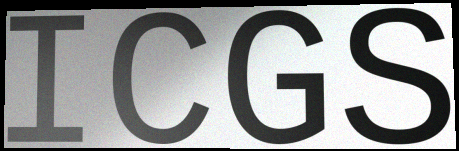
ICGS